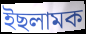
ইছলামক